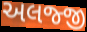
અલજ્જી